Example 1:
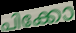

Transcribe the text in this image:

പിക്കോ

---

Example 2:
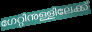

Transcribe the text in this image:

ഗേറ്റിനുള്ളിലേക്ക്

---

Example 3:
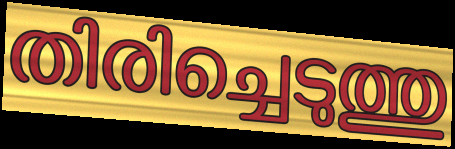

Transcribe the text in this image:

തിരിച്ചെടുത്തു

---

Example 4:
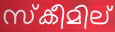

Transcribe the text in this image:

സ്കീമില്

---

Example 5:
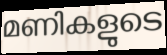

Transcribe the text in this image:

മണികളുടെ